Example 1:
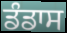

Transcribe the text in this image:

ਡੰਡਾਸ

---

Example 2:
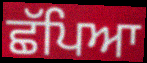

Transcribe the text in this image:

ਛੱਪਿਆ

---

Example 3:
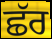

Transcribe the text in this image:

ਛੱਰ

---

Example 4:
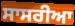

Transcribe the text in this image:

ਸਾਸਰੀਆ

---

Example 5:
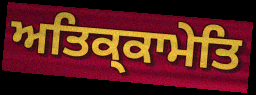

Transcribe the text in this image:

ਅਤਿਕ੍ਕਾਮੇਤਿ